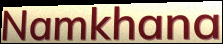
Namkhana